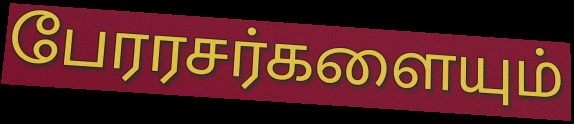
பேரரசர்களையும்